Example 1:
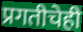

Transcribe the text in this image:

प्रगतीचेही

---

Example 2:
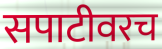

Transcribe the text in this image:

सपाटीवरच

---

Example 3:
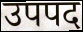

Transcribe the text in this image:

उपपद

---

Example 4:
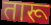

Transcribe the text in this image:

तारू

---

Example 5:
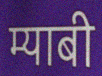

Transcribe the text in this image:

म्याबी